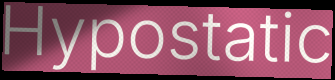
Hypostatic